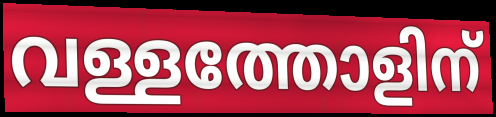
വള്ളത്തോളിന്